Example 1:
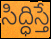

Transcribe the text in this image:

సిద్ధిస్తే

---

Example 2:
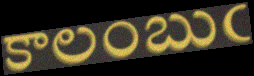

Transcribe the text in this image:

కాలంబుఁ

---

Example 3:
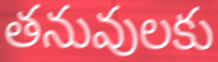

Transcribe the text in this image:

తనువులకు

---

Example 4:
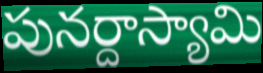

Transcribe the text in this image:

పునర్దాస్యామి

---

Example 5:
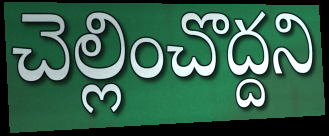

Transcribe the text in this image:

చెల్లించొద్దని